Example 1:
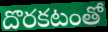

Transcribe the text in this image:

దొరకటంతో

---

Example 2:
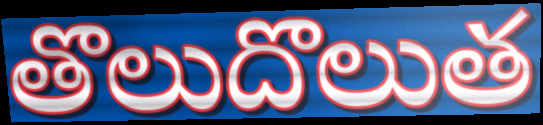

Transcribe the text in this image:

తొలుదొలుత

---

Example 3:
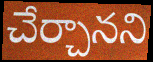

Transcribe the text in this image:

చేర్చానని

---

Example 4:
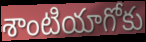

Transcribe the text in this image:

శాంటియాగోకు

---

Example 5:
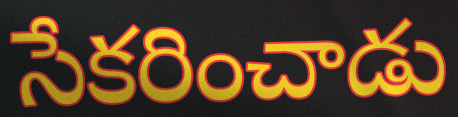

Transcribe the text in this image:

సేకరించాడు